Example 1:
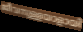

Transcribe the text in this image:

ജീവനുള്ളയാളായി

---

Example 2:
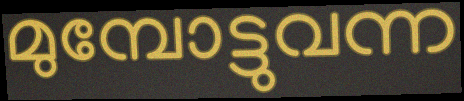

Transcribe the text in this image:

മുമ്പോട്ടുവന്ന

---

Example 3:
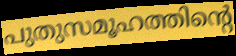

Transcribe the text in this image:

പുതുസമൂഹത്തിന്റെ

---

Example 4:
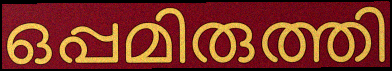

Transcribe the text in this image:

ഒപ്പമിരുത്തി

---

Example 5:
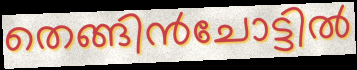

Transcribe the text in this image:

തെങ്ങിൻചോട്ടിൽ